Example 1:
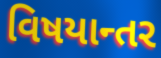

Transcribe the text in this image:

વિષયાન્તર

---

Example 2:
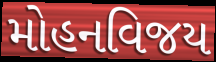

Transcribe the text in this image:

મોહનવિજય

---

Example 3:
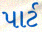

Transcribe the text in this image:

પાર્ટ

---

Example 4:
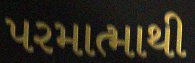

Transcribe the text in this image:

પરમાત્માથી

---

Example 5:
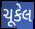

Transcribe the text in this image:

ચૂકેલ